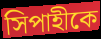
সিপাহীকে